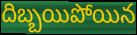
దిబ్బయిపోయిన